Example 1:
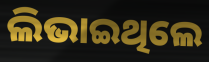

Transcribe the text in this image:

ଲିଭାଇଥିଲେ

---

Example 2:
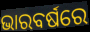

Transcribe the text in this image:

ଭାରବର୍ଷରେ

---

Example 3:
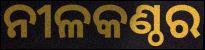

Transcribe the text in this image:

ନୀଳକଣ୍ଠର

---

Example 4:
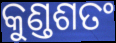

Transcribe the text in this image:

କୁଣ୍ଡଶତଂ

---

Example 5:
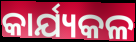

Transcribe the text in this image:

କାର୍ଯ୍ୟକଳ